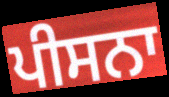
ਪੀਸਨਾ